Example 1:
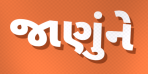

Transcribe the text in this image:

જાણુંને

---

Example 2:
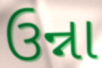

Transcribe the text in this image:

ઉન્ના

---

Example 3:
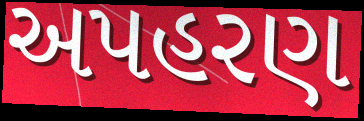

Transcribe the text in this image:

અપહરણ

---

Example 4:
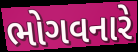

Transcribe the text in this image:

ભોગવનારે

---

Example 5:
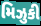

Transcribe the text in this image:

મિઝુકી